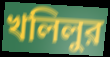
খলিলুর